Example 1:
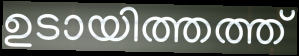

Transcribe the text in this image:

ഉടായിത്തത്ത്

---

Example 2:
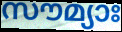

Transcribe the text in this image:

സൗമ്യാഃ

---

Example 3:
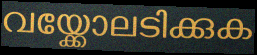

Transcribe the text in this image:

വയ്ക്കോലടിക്കുക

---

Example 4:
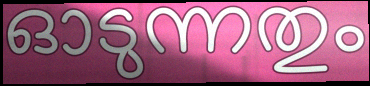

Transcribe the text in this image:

ഓടുന്നതും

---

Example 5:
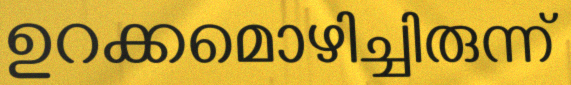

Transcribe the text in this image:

ഉറക്കമൊഴിച്ചിരുന്ന്